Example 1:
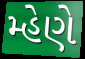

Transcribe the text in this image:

મ્હેણે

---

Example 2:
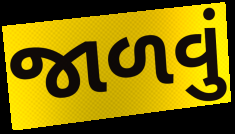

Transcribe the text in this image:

જાળવું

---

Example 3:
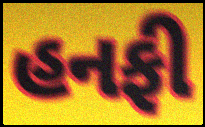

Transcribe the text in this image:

હનફી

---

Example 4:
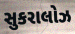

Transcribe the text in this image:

સુકરાલોઝ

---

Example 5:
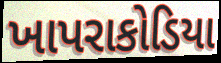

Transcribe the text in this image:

ખાપરાકોડિયા